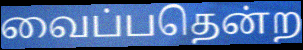
வைப்பதென்ற